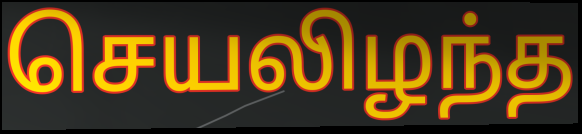
செயலிழந்த